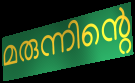
മരുന്നിന്റെ